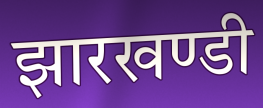
झारखण्डी